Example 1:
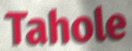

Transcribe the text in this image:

Tahole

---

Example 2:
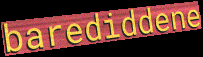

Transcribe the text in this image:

barediddene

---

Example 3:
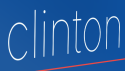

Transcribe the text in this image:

clinton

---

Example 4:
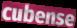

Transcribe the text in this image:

cubense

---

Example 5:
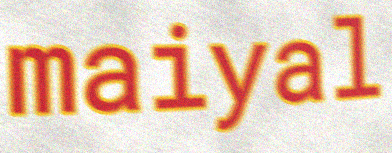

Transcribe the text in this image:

maiyal